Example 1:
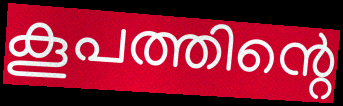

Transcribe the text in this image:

കൂപത്തിന്റെ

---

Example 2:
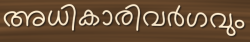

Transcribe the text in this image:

അധികാരിവർഗവും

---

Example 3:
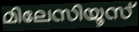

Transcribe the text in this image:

മിലേസിയൂസ്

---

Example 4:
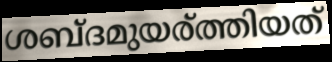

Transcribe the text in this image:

ശബ്ദമുയര്ത്തിയത്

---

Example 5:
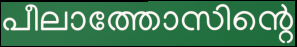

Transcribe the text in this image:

പീലാത്തോസിന്റെ